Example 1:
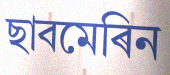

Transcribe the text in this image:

ছাবমেৰিন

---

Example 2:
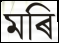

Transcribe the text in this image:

মৰি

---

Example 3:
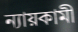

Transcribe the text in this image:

ন্যায়কামী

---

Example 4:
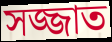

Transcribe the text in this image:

সজ্জাত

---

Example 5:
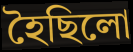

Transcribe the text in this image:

হৈছিলো